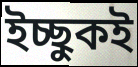
ইচ্ছুকই